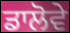
ਡਾਲੋਵੇ